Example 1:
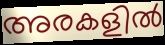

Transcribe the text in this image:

അരകളിൽ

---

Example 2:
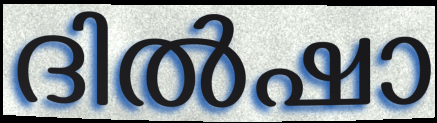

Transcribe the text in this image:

ദിൽഷാ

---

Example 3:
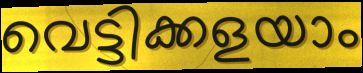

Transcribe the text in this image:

വെട്ടിക്കളയാം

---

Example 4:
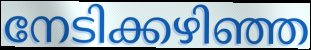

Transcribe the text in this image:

നേടിക്കഴിഞ്ഞ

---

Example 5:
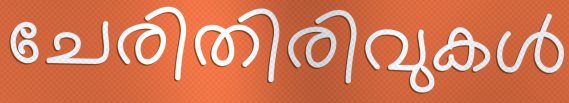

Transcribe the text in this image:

ചേരിതിരിവുകൾ